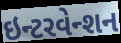
ઇન્ટરવેન્શન